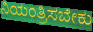
ನಿಯಂತ್ರಿಸಬೇಕು